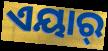
ଏୟାର୍